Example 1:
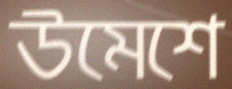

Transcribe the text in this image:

উমেশে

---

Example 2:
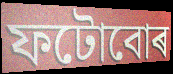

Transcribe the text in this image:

ফটোবোৰ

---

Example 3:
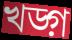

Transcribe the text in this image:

খড়্গ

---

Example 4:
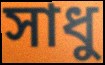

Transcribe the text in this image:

সাধু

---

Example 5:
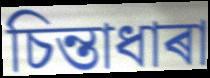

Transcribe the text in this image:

চিন্তাধাৰা